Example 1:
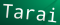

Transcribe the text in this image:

Tarai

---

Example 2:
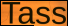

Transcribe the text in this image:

Tass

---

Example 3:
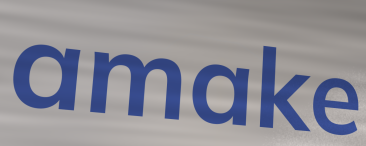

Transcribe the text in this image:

amake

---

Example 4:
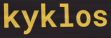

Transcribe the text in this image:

kyklos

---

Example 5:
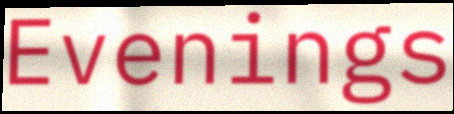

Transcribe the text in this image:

Evenings